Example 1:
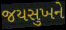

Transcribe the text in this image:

જયસુખને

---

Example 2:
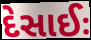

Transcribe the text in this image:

દેસાઈઃ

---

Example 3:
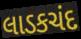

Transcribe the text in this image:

લાડકચંદ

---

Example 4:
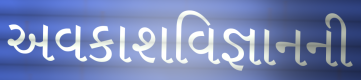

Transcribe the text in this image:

અવકાશવિજ્ઞાનની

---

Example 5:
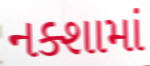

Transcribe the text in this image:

નક્શામાં